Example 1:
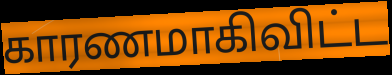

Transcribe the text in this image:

காரணமாகிவிட்ட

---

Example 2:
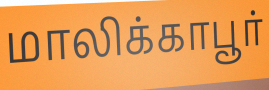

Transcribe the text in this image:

மாலிக்காபூர்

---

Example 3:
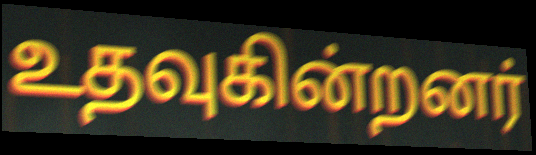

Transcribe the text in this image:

உதவுகின்றனர்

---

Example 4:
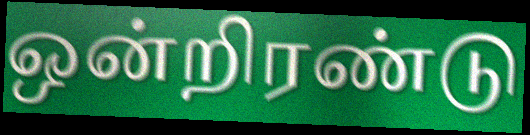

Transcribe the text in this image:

ஒன்றிரண்டு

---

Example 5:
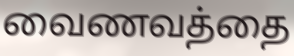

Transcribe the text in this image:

வைணவத்தை